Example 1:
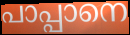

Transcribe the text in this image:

പാപ്പാനെ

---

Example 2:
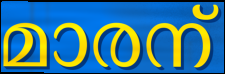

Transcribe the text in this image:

മാരന്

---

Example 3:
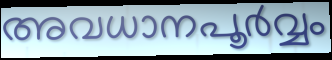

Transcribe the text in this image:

അവധാനപൂർവ്വം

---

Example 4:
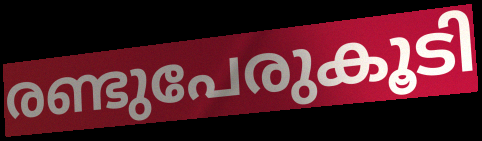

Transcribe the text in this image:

രണ്ടുപേരുകൂടി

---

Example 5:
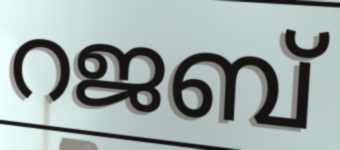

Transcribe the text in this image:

റജബ്